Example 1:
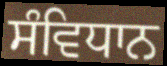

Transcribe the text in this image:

ਸੰਵਿਧਾਨ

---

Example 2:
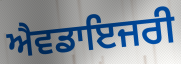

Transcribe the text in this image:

ਐਵਡਾਇਜਰੀ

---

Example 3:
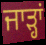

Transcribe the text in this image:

ਜਾੜ੍ਹਾਂ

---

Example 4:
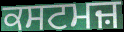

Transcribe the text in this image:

ਕਸਟਮਜ਼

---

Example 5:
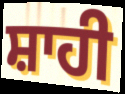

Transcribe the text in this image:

ਸ਼ਾਹੀ